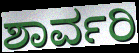
ಶಾರ್ವರಿ